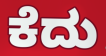
ಕೆದು